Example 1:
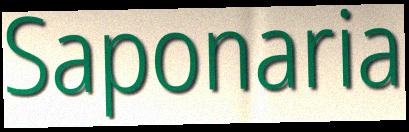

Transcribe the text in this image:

Saponaria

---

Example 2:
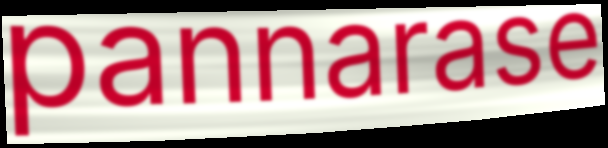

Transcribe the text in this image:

pannarase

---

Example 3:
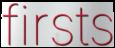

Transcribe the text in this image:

firsts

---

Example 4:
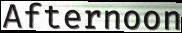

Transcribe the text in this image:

Afternoon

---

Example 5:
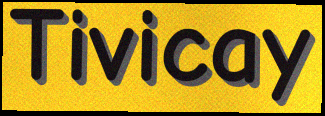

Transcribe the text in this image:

Tivicay